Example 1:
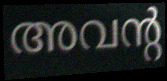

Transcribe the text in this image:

അവന്റ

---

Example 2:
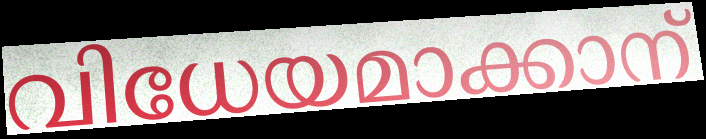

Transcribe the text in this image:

വിധേയമാക്കാന്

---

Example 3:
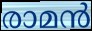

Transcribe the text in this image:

രാമൻ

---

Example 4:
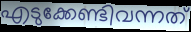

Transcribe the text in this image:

എടുക്കേണ്ടിവന്നത്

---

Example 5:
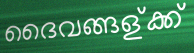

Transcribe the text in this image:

ദൈവങ്ങള്ക്ക്